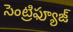
సెంట్రిఫ్యూజ్